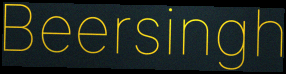
Beersingh